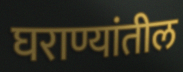
घराण्यांतील